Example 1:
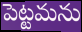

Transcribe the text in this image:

పెట్టమను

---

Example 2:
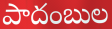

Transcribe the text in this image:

పాదంబుల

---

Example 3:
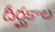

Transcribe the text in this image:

దీర్ఘకాల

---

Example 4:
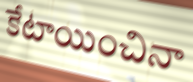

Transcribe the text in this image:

కేటాయించినా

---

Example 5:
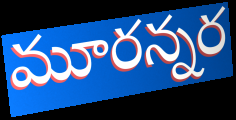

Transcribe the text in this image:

మూరన్నర